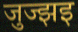
जुज्झइ